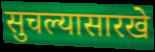
सुचल्यासारखे